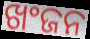
ଖଂଜନ